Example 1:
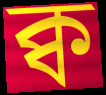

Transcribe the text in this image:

ক্ব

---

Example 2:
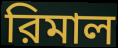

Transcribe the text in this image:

রিমাল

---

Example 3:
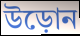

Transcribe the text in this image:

উড়োন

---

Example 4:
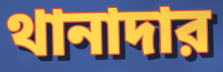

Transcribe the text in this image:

থানাদার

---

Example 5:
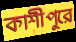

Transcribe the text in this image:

কাশীপুরে